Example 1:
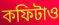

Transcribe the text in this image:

কফিটাও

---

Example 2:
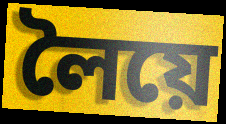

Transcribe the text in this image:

লৈয়ে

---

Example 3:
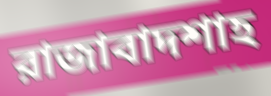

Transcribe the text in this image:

রাজাবাদশাহ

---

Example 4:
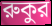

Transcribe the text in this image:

রুকুর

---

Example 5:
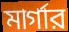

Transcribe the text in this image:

মার্গার